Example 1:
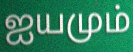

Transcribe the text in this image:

ஐயமும்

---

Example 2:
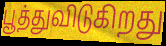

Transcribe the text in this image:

பூத்துவிடுகிறது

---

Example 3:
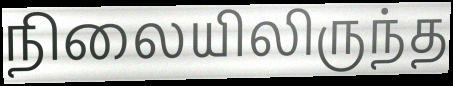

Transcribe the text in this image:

நிலையிலிருந்த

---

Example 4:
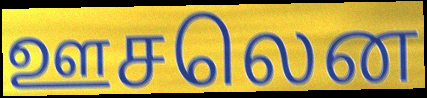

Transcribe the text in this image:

ஊசலென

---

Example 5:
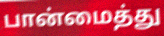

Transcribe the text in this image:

பான்மைத்து